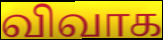
விவாக